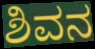
ಶಿವನ